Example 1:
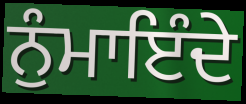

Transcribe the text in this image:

ਨੁੰਮਾਇੰਦੇ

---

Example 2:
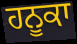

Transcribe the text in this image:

ਹਨੂਕਾ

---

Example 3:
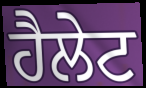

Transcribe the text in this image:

ਹੈਲੇਟ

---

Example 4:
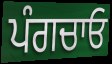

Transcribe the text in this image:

ਪੰਗਚਾਓ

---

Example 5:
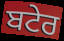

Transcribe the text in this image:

ਬਟੇਰ